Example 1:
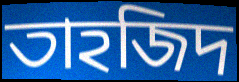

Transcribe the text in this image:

তাহজিদ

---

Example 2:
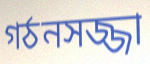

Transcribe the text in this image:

গঠনসজ্জা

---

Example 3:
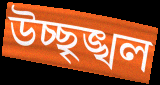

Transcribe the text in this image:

উচ্ছৃঙ্খল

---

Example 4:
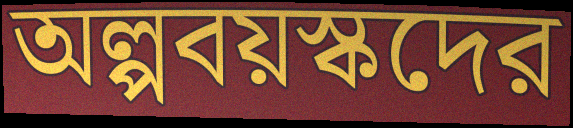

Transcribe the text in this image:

অল্পবয়স্কদের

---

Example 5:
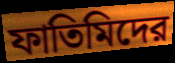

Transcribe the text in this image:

ফাতিমিদের